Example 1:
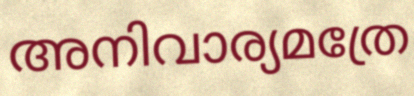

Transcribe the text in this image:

അനിവാര്യമത്രേ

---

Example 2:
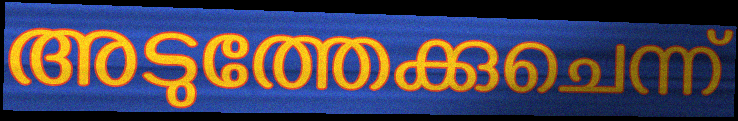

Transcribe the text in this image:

അടുത്തേക്കുചെന്ന്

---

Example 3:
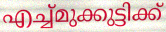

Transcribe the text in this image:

എച്ച്മുക്കുട്ടിക്ക്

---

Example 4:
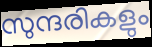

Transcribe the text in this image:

സുന്ദരികളും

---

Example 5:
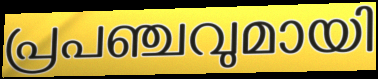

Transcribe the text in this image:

പ്രപഞ്ചവുമായി